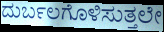
ದುರ್ಬಲಗೊಳಿಸುತ್ತಲೇ